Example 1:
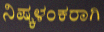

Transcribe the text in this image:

ನಿಷ್ಕಳಂಕರಾಗಿ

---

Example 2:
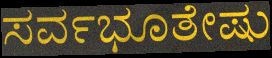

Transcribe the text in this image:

ಸರ್ವಭೂತೇಷು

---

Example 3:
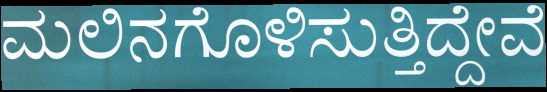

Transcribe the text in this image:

ಮಲಿನಗೊಳಿಸುತ್ತಿದ್ದೇವೆ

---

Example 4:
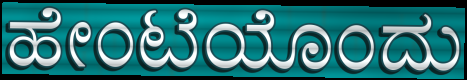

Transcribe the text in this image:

ಹೇಂಟೆಯೊಂದು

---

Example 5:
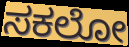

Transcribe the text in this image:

ಸಕಲೋ